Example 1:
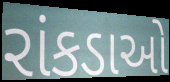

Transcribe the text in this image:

રાંકડાઓ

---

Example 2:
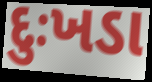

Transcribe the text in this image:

દુઃખડા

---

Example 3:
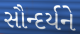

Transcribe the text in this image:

સૌન્દર્યને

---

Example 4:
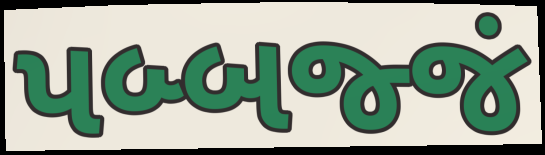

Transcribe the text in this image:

પબ્બજ્જં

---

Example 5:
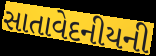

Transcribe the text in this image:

સાતાવેદનીયની